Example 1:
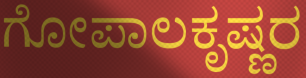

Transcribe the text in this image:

ಗೋಪಾಲಕೃಷ್ಣರ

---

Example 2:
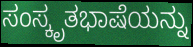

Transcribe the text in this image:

ಸಂಸ್ಕೃತಭಾಷೆಯನ್ನು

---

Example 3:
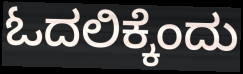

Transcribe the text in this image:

ಓದಲಿಕ್ಕೆಂದು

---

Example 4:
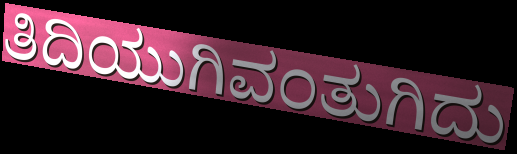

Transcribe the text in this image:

ತಿದಿಯುಗಿವಂತುಗಿದು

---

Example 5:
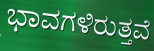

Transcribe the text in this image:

ಭಾವಗಳಿರುತ್ತವೆ